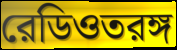
রেডিওতরঙ্গ